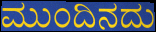
ಮುಂದಿನದು